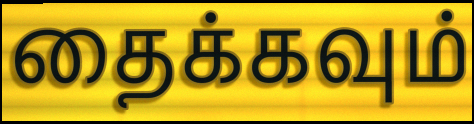
தைக்கவும்